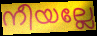
നീയല്ലേ